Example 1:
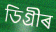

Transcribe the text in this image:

ডিগ্ৰীৰ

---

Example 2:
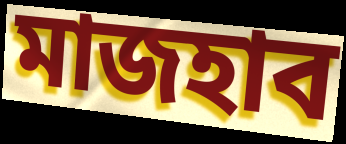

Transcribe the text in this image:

মাজহাব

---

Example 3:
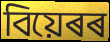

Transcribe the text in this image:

বিয়েৰৰ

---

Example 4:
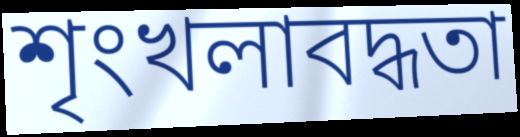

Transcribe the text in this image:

শৃংখলাবদ্ধতা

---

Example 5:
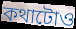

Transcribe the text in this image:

কথাটোও